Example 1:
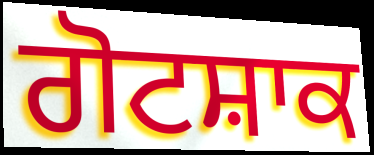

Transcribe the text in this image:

ਗੋਟਸ਼ਾਕ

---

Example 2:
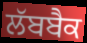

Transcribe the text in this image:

ਲੱਬਬੈਕ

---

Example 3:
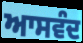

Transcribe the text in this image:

ਆਸਵੰਦ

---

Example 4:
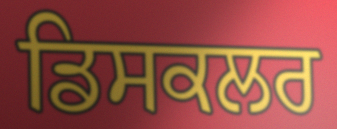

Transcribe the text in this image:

ਡਿਸਕਲਰ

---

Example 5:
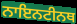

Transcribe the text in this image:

ਨਾਇਨਟੀਨਥ